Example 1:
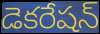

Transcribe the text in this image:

డెకరేషన్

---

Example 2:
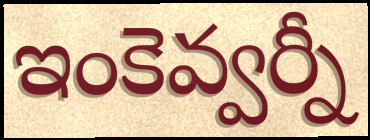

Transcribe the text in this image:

ఇంకెవ్వర్నీ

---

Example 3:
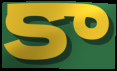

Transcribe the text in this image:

కా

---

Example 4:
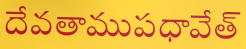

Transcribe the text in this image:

దేవతాముపధావేత్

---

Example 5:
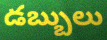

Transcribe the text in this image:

డబ్బులు